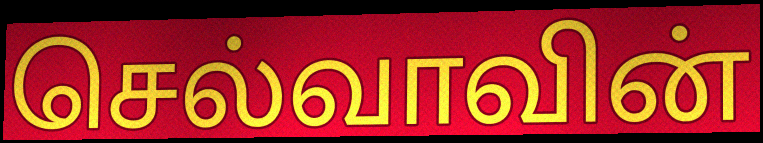
செல்வாவின்